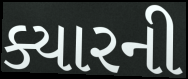
ક્યારની